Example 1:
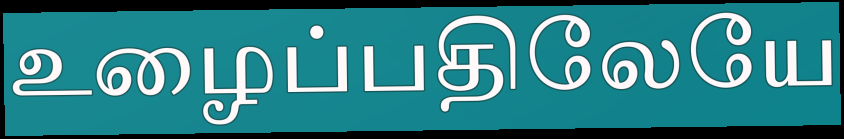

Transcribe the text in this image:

உழைப்பதிலேயே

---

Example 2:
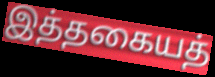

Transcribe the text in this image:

இத்தகையத்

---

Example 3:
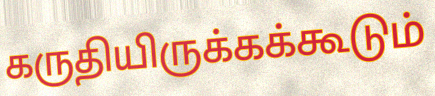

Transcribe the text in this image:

கருதியிருக்கக்கூடும்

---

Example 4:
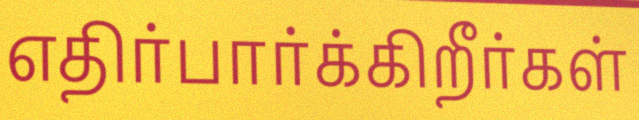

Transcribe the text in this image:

எதிர்பார்க்கிறீர்கள்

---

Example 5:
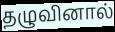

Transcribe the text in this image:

தழுவினால்